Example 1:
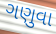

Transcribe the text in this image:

ગણુવા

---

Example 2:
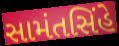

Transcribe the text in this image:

સામંતસિંહે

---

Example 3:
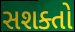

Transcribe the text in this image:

સશક્તો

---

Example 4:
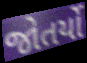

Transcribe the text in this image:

જોતર્યો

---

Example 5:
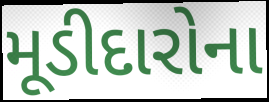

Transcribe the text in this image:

મૂડીદારોના